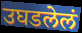
उघडलेलं